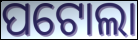
ପଟୋଲା